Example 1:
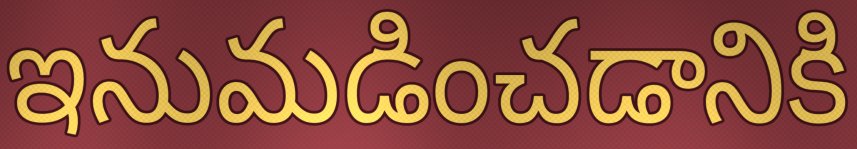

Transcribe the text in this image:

ఇనుమడించడానికి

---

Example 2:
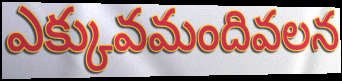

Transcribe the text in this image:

ఎక్కువమందివలన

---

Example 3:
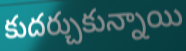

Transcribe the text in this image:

కుదర్చుకున్నాయి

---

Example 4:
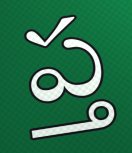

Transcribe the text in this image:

ప్త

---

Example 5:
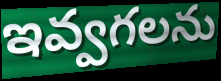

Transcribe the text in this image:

ఇవ్వగలను